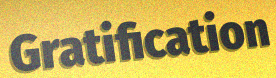
Gratification